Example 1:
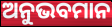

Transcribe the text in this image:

ଅନୁଭବମାନ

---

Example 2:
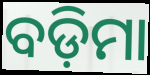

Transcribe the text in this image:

ବଡ଼ିମା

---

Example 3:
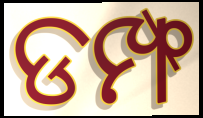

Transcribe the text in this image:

ଡମ୍ଫ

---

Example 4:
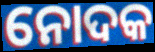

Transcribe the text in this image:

ନୋଦକ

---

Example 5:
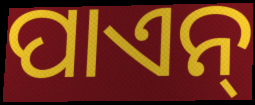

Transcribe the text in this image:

ପାଏନ୍